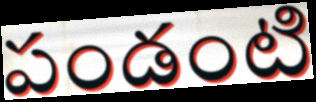
పండంటి